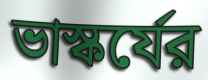
ভাস্কর্যের